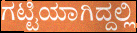
ಗಟ್ಟಿಯಾಗಿದ್ದಲ್ಲಿ